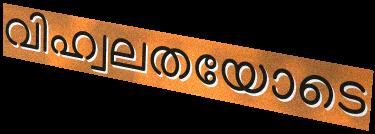
വിഹ്വലതയോടെ